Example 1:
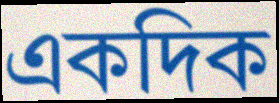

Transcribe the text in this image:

একদিক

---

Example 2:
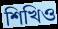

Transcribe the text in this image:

শিখিও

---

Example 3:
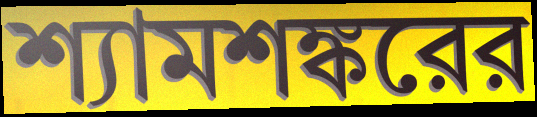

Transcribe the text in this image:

শ্যামশঙ্করের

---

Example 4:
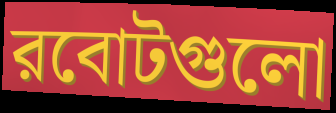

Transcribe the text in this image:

রবোটগুলো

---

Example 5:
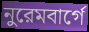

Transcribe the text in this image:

নুরেমবার্গে